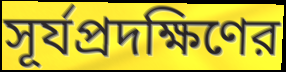
সূর্যপ্রদক্ষিণের